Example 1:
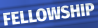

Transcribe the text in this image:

FELLOWSHIP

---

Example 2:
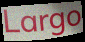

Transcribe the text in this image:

Largo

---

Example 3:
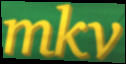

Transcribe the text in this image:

mkv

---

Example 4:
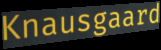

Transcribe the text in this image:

Knausgaard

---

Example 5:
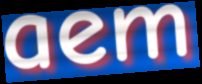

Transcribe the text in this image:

aem